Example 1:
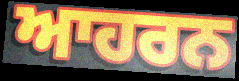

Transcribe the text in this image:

ਆਹਰਨ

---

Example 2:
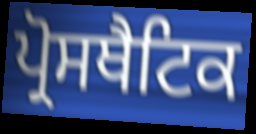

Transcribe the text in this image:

ਪ੍ਰੋਸਥੈਟਿਕ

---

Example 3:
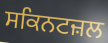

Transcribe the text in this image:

ਸਕਿਨਟਜ਼ਲ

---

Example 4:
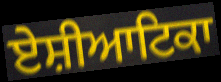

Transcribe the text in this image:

ਏਸ਼ੀਆਟਿਕਾ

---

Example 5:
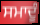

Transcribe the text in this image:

ਸਮਾਦੂੰ